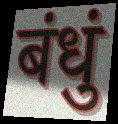
बंधुं